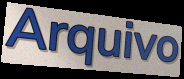
Arquivo